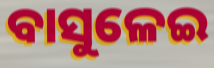
ବାସୁଳେଇ